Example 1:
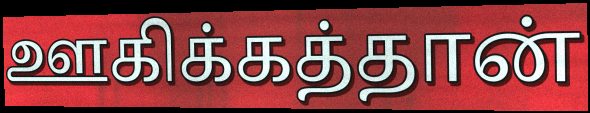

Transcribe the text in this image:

ஊகிக்கத்தான்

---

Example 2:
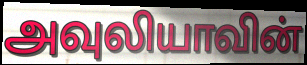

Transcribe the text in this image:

அவுலியாவின்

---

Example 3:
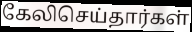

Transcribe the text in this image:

கேலிசெய்தார்கள்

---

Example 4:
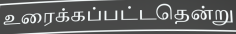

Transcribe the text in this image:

உரைக்கப்பட்டதென்று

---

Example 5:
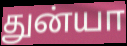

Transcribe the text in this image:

துன்யா